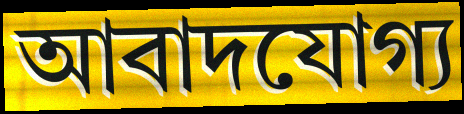
আবাদযোগ্য